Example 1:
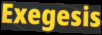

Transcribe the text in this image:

Exegesis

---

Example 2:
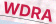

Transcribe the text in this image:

WDRA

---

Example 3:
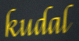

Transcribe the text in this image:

kudal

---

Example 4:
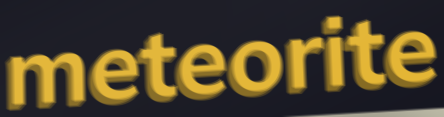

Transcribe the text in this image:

meteorite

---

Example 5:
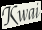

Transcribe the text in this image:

Kwai